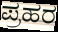
ಪ್ರಹರ